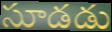
సూడడు